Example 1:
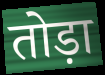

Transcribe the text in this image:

तोड़ा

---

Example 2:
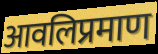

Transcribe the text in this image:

आवलिप्रमाण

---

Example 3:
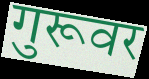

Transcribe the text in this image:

गुरूवर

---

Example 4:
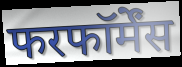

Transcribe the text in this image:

फरफॉर्मेंस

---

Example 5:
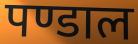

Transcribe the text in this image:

पण्डाल